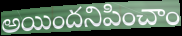
అయిందనిపించాం